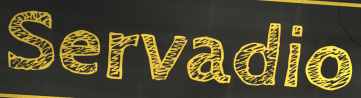
Servadio